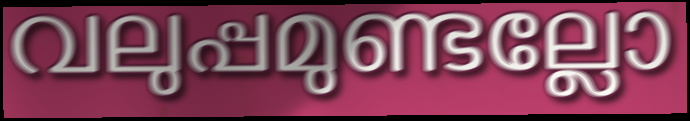
വലുപ്പമുണ്ടല്ലോ